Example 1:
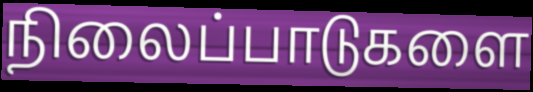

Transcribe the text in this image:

நிலைப்பாடுகளை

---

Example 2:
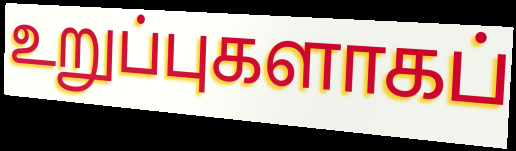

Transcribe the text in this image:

உறுப்புகளாகப்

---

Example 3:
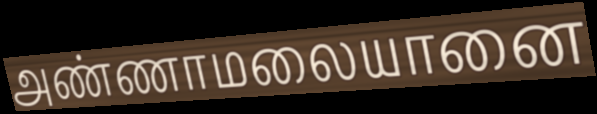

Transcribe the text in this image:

அண்ணாமலையானை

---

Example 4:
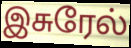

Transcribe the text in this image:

இசுரேல்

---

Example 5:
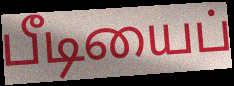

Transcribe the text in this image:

பீடியைப்